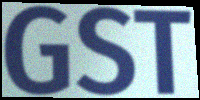
GST